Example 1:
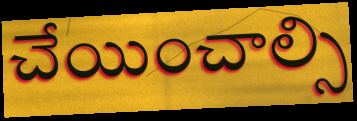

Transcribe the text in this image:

చేయించాల్సి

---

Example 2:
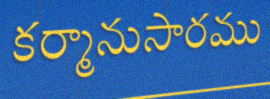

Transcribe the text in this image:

కర్మానుసారము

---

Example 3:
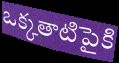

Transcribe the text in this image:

ఒక్కతాటిపైకి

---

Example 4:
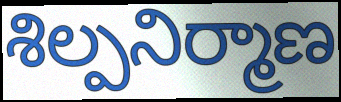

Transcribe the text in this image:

శిల్పనిర్మాణ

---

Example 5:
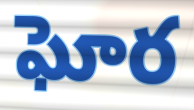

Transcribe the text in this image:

ఘోర